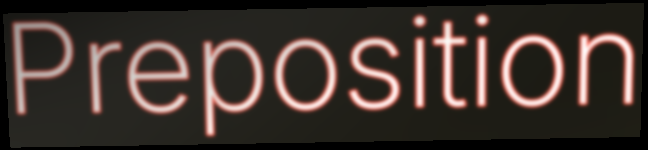
Preposition